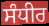
ਸੰਧੀਰ